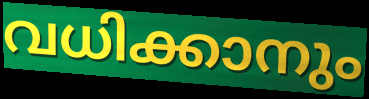
വധിക്കാനും